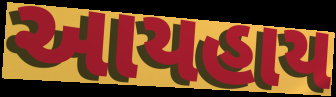
આયહાય